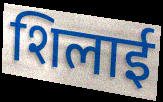
शिलाई